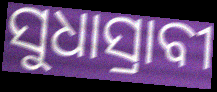
ସୁଧାସ୍ରାବୀ